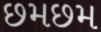
છમછમ